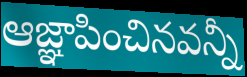
ఆజ్ఞాపించినవన్నీ